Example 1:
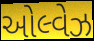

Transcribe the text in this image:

ઓલ્વેઝ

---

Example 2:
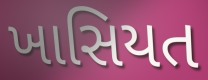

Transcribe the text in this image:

ખાસિયત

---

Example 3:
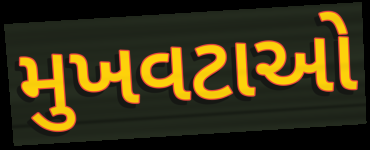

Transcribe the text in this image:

મુખવટાઓ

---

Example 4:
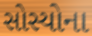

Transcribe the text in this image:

સોસ્યોના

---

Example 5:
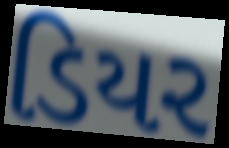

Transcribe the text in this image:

ડિયર